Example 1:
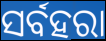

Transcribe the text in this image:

ସର୍ବହରା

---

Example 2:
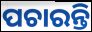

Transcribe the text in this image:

ପଚାରନ୍ତି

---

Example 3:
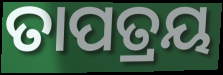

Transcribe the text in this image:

ତାପତ୍ରୟ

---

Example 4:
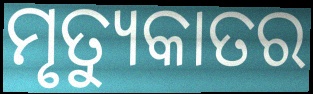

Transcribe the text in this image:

ମୃତ୍ୟୁକାତର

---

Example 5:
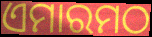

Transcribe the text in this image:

ଏମାରମଠ